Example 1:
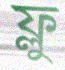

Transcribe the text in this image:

ফ্লু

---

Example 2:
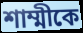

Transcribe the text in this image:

শাম্মীকে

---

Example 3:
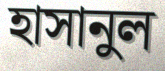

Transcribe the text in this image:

হাসানুল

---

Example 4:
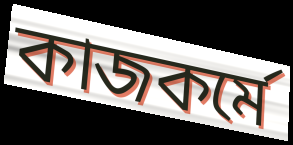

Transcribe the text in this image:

কাজকর্মে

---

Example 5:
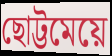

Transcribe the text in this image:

ছোট্টমেয়ে